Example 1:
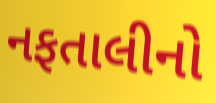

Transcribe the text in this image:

નફતાલીનો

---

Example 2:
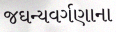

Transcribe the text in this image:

જઘન્યવર્ગણાના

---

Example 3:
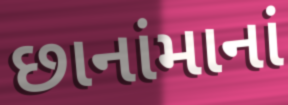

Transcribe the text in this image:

છાનાંમાનાં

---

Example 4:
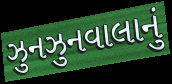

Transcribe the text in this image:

ઝુનઝુનવાલાનું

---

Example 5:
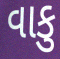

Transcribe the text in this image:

વાકુ